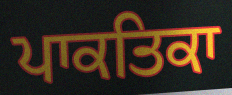
ਪਾਕਤਿਕਾ